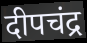
दीपचंद्र